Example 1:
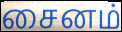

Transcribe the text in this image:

சைனம்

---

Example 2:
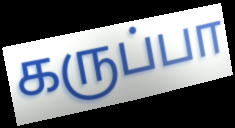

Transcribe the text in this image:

கருப்பா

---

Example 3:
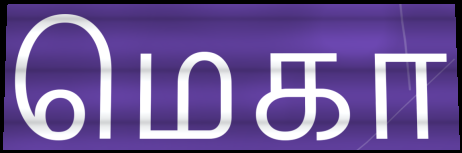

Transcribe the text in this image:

மெகா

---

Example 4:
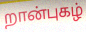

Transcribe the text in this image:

றான்புகழ்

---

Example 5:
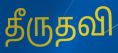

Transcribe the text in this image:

தீருதவி